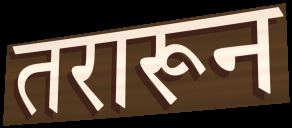
तरारून